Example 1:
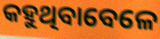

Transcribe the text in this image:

କହୁଥିବାବେଳେ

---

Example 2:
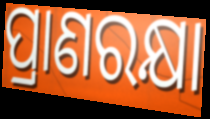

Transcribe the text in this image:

ପ୍ରାଣରକ୍ଷା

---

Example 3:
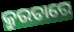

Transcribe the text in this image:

କ୍ରୁରତାରେ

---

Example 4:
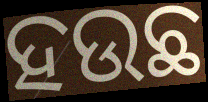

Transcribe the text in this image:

ହଉଛ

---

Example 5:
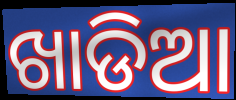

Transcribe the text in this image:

ଖାଡିଆ